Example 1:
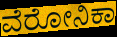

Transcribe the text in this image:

ವೆರೋನಿಕಾ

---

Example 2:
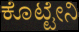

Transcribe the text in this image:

ಕೊಟ್ಟೇನಿ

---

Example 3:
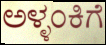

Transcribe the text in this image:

ಅಳ್ಳಂಕಿಗೆ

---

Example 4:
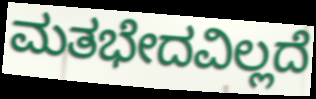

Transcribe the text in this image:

ಮತಭೇದವಿಲ್ಲದೆ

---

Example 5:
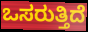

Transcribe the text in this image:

ಒಸರುತ್ತಿದೆ